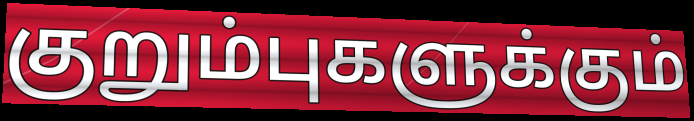
குறும்புகளுக்கும்